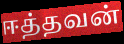
ஈத்தவன்